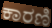
ಕಾರಣಿ